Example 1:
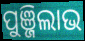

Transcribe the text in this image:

ପୁଞ୍ଜିଲାଭ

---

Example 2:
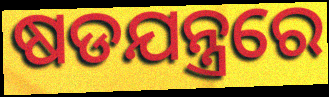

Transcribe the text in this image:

ଷଡଯନ୍ତ୍ରରେ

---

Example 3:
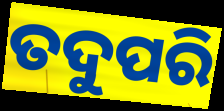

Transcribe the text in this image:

ତଦୁପରି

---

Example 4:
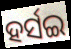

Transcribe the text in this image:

ହର୍ସଇ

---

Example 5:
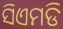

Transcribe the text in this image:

ସିଏମଡି